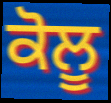
ਕੋਲੂ